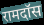
रामदॉस